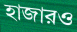
হাজারও